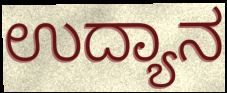
ಉದ್ಯಾನ